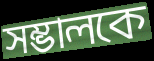
সম্ভালকে